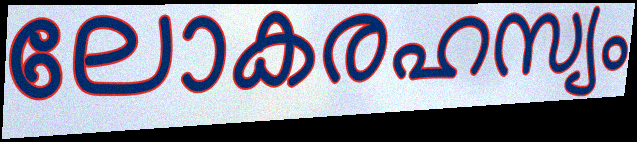
ലോകരഹസ്യം